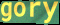
gory